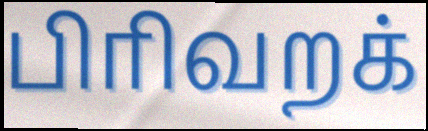
பிரிவறக்